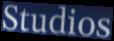
Studios